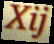
Xij